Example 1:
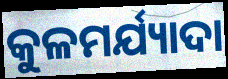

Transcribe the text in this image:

କୁଳମର୍ଯ୍ୟାଦା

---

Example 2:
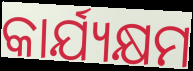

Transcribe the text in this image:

କାର୍ଯ୍ୟକ୍ଷମ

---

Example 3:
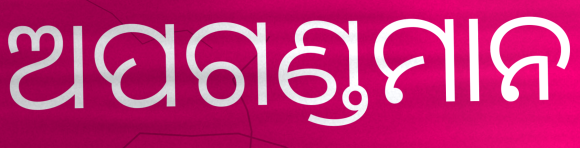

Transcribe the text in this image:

ଅପଗଣ୍ଡମାନ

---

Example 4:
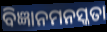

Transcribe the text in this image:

ବିଜ୍ଞାନମନସ୍କତା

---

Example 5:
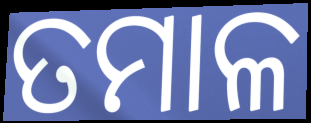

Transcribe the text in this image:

ତମାଳ